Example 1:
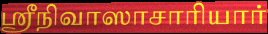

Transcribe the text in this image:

ஸ்ரீநிவாஸாசாரியார்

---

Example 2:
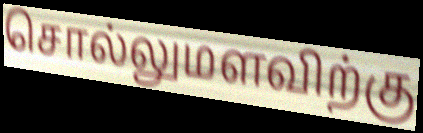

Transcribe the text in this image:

சொல்லுமளவிற்கு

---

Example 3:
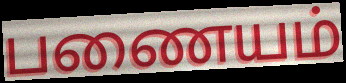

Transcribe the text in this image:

பணையம்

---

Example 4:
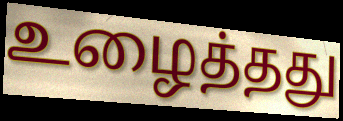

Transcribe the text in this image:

உழைத்தது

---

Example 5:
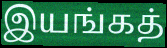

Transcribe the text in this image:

இயங்கத்